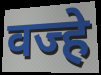
वज्हे